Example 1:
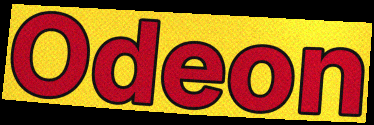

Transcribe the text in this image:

Odeon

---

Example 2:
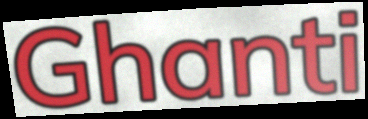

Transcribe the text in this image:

Ghanti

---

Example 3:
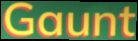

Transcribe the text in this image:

Gaunt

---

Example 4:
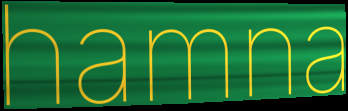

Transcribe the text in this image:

hamna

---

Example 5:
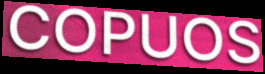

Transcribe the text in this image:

COPUOS